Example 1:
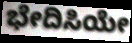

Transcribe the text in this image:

ಭೇದಿಸಿಯೇ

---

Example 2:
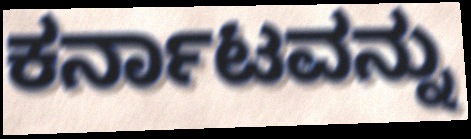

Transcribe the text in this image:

ಕರ್ನಾಟವನ್ನು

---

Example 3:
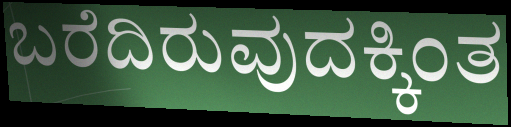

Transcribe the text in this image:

ಬರೆದಿರುವುದಕ್ಕಿಂತ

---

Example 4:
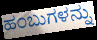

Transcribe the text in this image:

ಹಂಬುಗಳನ್ನು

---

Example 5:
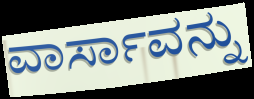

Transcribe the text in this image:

ವಾರ್ಸಾವನ್ನು